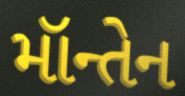
મૉન્તેન